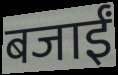
बजाईं